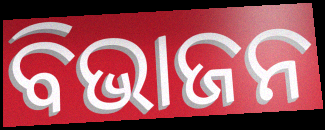
ବିଭାଜନ